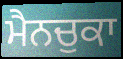
ਮੈਨਚੁਕਾ